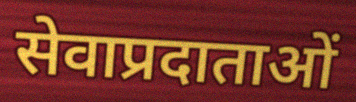
सेवाप्रदाताओं